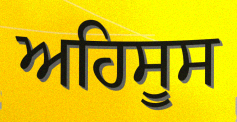
ਅਹਿਸੂਸ